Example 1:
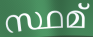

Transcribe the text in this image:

സ്ഥമ്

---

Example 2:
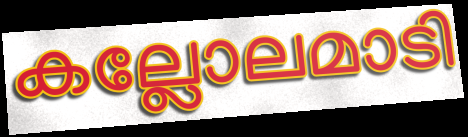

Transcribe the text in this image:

കല്ലോലമാടി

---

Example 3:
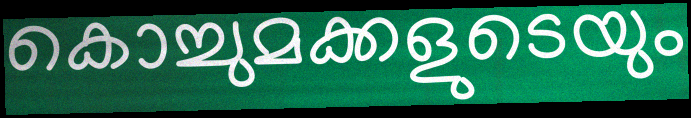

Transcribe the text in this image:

കൊച്ചുമക്കളുടെയും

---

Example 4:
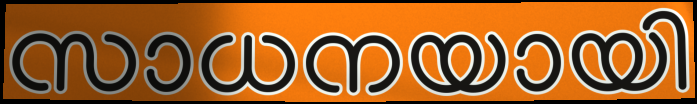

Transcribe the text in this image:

സാധനയായി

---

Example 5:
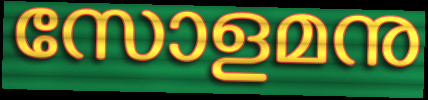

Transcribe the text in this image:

സോളമനു